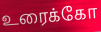
உரைக்கோ